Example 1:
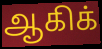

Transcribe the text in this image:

ஆகிக்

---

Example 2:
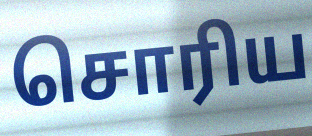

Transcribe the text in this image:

சொரிய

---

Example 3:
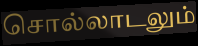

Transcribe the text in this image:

சொல்லாடலும்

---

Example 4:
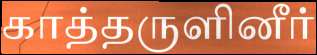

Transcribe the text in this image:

காத்தருளினீர்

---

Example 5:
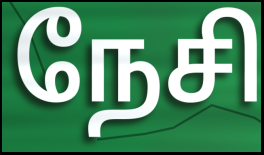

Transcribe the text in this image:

நேசி